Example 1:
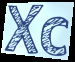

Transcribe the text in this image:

Xc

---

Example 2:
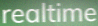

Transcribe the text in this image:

realtime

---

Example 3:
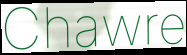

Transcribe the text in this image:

Chawre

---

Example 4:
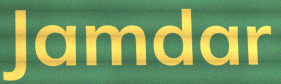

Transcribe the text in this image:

Jamdar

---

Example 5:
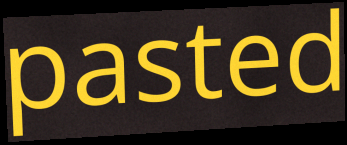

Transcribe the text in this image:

pasted